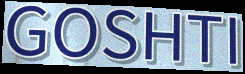
GOSHTI